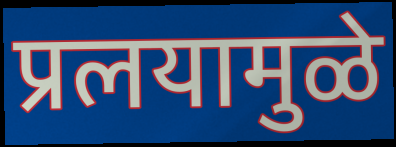
प्रलयामुळे